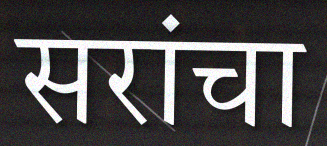
सरांचा